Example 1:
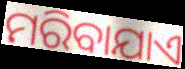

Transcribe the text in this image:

ମରିବାଯାଏ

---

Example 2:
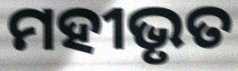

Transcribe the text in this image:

ମହୀଭୃତ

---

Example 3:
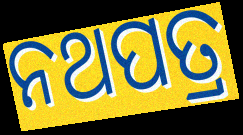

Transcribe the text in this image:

ନଥପତ୍ର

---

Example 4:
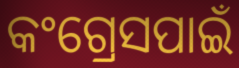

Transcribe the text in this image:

କଂଗ୍ରେସପାଇଁ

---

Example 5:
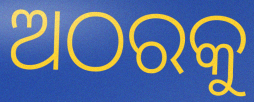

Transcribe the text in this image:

ଅଠରକୁ